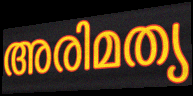
അരിമത്യ